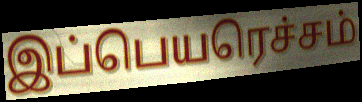
இப்பெயரெச்சம்